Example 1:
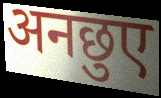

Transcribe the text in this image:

अनछुए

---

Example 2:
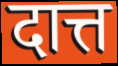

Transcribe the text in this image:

दात्त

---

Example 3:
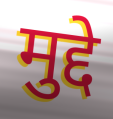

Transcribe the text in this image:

मुद्दे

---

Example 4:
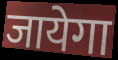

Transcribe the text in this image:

जायेगा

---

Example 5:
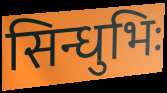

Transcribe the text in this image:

सिन्धुभिः